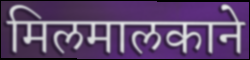
मिलमालकाने